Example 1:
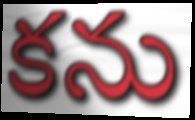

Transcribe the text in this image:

కను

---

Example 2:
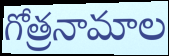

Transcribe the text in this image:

గోత్రనామాల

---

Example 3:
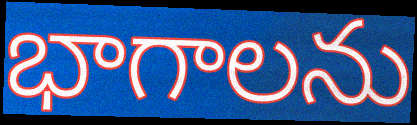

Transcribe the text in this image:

భాగాలను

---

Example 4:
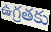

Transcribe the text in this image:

ఉగ్రతకు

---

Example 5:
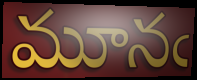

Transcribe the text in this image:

మూనఁ